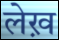
लेख़